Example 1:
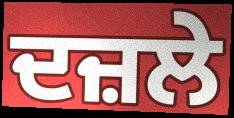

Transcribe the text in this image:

ਦਜ਼ਲੇ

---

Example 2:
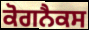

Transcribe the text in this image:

ਕੋਗਨੈਕਸ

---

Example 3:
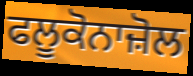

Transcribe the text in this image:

ਫਲੂਕੋਨਾਜ਼ੋਲ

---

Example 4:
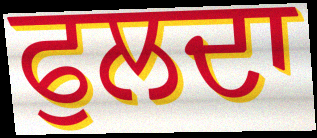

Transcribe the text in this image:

ਫੁਲਦਾ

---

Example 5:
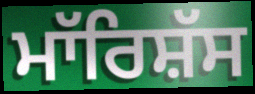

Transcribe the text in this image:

ਮਾੱਰਿਸ਼ੱਸ